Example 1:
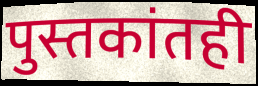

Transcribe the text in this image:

पुस्तकांतही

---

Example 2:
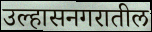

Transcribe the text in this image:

उल्हासनगरातील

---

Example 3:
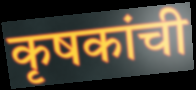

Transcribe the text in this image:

कृषकांची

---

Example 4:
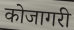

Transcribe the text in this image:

कोजागरी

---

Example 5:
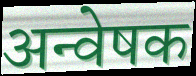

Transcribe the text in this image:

अन्वेषक